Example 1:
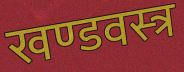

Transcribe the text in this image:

खण्डवस्त्र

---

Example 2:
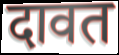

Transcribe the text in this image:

दावत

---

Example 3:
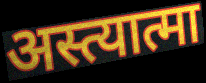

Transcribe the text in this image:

अस्त्यात्मा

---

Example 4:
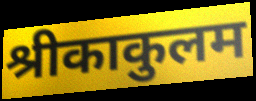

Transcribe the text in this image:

श्रीकाकुलम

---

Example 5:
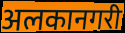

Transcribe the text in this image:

अलकानगरी